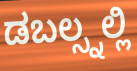
ಡಬಲ್ಸ್ನಲ್ಲಿ